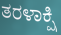
ತರಳಾಕ್ಷಿ